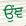
ਉਂਞ